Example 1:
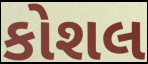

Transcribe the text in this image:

કોશલ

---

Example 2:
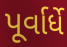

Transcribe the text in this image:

પૂર્વાર્ધે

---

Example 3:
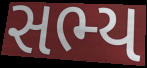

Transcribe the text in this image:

સભ્ય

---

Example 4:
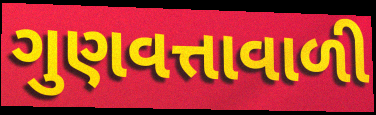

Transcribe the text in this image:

ગુણવત્તાવાળી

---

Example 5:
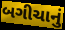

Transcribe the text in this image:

બગીચાનું